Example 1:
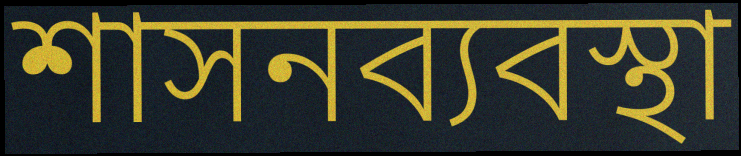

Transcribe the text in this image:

শাসনব্যবস্থা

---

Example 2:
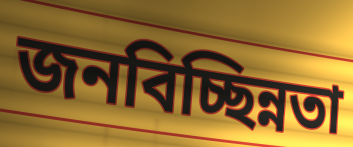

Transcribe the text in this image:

জনবিচ্ছিন্নতা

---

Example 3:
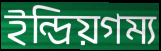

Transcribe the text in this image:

ইন্দ্রিয়গম্য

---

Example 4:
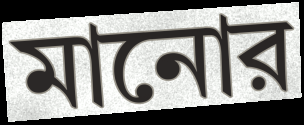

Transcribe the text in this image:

মানোর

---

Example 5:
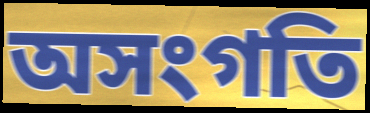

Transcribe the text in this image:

অসংগতি